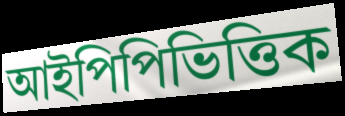
আইপিপিভিত্তিক